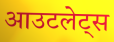
आउटलेट्स